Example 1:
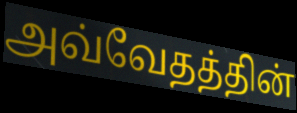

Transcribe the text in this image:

அவ்வேதத்தின்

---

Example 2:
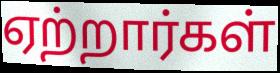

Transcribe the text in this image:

ஏற்றார்கள்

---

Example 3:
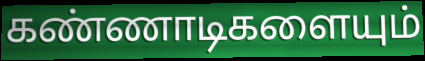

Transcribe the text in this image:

கண்ணாடிகளையும்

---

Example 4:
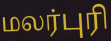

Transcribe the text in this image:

மலர்புரி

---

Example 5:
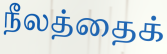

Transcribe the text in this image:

நீலத்தைக்